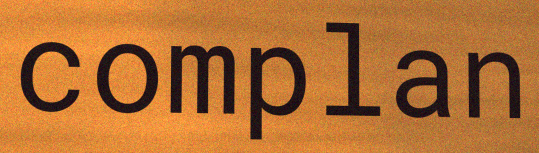
complan